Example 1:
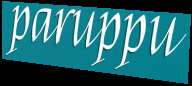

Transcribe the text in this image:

paruppu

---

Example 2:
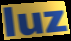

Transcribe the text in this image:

luz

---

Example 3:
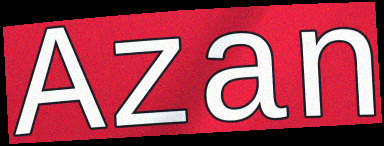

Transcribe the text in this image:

Azan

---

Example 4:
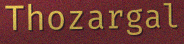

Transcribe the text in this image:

Thozargal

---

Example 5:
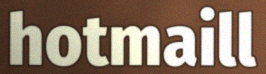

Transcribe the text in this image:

hotmaill